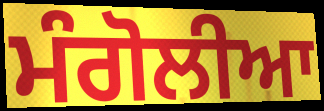
ਮੰਗੋਲੀਆ